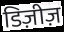
डिज़ीज़